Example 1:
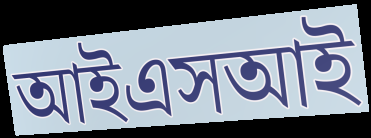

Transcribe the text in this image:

আইএসআই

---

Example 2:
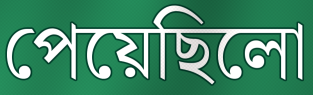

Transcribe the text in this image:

পেয়েছিলো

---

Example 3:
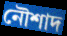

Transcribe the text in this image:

নৌশাদ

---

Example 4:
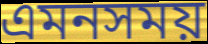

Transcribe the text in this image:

এমনসময়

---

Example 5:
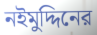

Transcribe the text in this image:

নইমুদ্দিনের